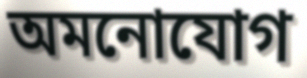
অমনোযোগ